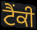
ਟੈਂਕੀ